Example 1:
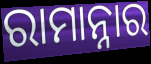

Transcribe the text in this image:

ରାମାନ୍ନାର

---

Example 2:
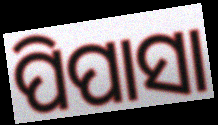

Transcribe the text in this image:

ପିପାସା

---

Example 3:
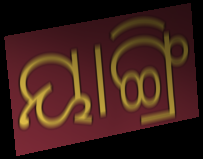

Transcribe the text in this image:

ୟାଙ୍ଗ୍ରି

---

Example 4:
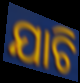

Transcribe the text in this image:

ଯାଚି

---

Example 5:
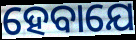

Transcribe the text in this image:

ହେବାଯେ